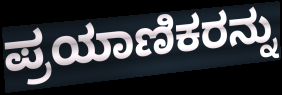
ಪ್ರಯಾಣಿಕರನ್ನು